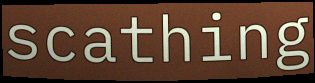
scathing